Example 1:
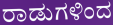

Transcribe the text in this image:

ರಾಡುಗಳಿಂದ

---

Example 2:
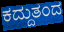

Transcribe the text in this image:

ಕದ್ದುತಂದ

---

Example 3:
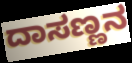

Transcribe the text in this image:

ದಾಸಣ್ಣನ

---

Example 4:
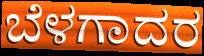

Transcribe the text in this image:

ಬೆಳಗಾದರ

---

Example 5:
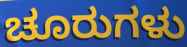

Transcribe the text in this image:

ಚೂರುಗಳು